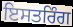
ਇਸਤਰਿੰਗ